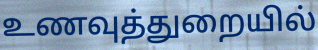
உணவுத்துறையில்